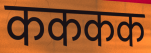
कककक